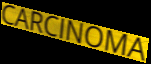
CARCINOMA